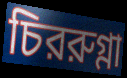
চিররুগ্না